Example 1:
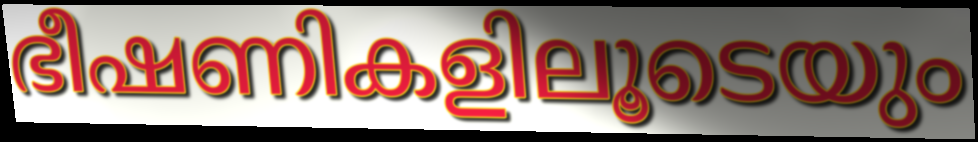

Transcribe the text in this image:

ഭീഷണികളിലൂടെയും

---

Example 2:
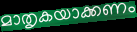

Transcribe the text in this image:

മാതൃകയാക്കണം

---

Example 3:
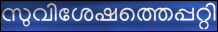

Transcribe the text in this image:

സുവിശേഷത്തെപ്പറ്റി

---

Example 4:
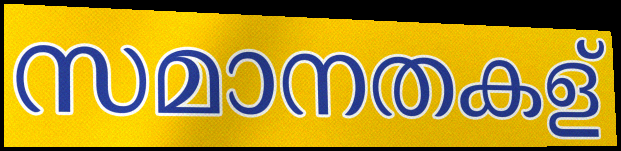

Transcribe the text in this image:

സമാനതകള്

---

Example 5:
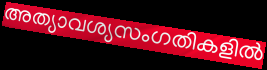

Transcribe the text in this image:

അത്യാവശ്യസംഗതികളിൽ